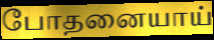
போதனையாய்